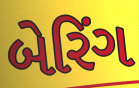
બેરિંગ